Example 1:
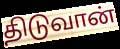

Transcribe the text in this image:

திடுவான்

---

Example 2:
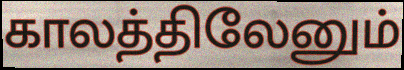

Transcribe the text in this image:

காலத்திலேனும்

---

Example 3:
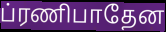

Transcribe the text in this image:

ப்ரணிபாதேன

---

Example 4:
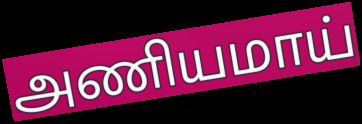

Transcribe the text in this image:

அணியமாய்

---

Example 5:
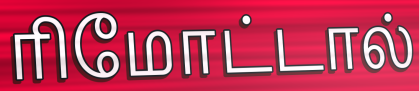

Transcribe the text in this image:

ரிமோட்டால்